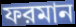
ফরমান